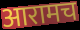
आरामच